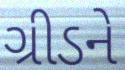
ગ્રીડને